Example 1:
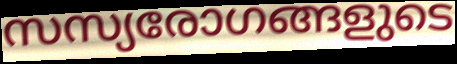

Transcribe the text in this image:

സസ്യരോഗങ്ങളുടെ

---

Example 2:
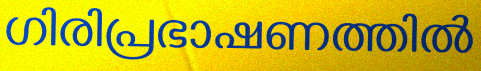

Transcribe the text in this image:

ഗിരിപ്രഭാഷണത്തിൽ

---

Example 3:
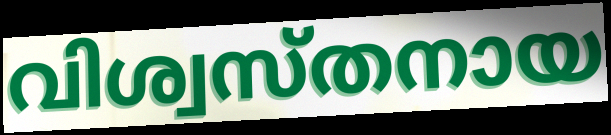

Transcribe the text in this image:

വിശ്വസ്തനായ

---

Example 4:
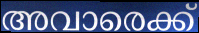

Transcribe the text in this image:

അവാരെക്ക്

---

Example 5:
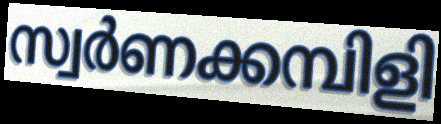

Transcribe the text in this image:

സ്വർണക്കമ്പിളി